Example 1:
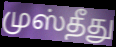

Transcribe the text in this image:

முஸ்தீது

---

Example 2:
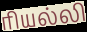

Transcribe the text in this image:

ரியல்லி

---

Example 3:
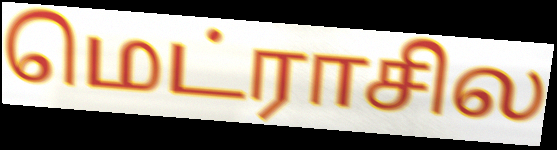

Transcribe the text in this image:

மெட்ராசில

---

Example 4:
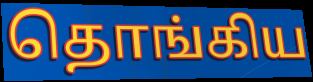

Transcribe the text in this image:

தொங்கிய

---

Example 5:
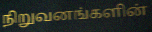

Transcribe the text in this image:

நிறுவனங்களின்